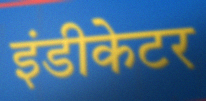
इंडीकेटर